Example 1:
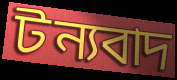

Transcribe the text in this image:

টন্যবাদ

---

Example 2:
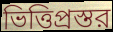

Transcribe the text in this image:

ভিত্তিপ্রস্তর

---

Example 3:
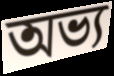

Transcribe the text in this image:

অভ্য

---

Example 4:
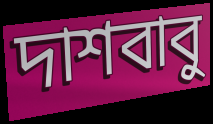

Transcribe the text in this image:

দাশবাবু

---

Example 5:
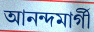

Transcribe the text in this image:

আনন্দমার্গী